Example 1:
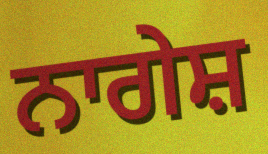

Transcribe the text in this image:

ਨਾਗੇਸ਼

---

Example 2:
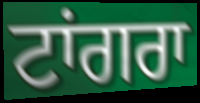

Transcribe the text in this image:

ਟਾਂਗਰਾ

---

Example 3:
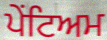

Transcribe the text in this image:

ਪੇਂਟਿਅਮ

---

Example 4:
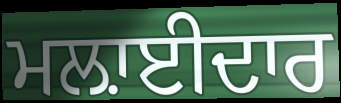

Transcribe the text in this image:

ਮਲ਼ਾਈਦਾਰ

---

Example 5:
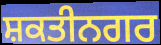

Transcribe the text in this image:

ਸ਼ਕਤੀਨਗਰ